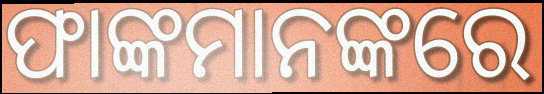
ଫାଙ୍କମାନଙ୍କରେ